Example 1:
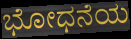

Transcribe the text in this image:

ಭೋಧನೆಯ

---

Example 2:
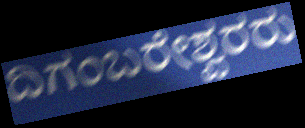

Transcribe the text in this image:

ದಿಗಂಬರೇಶ್ವರರು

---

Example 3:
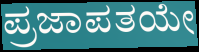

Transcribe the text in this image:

ಪ್ರಜಾಪತಯೇ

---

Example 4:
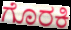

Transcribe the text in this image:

ಗೊರಕಿ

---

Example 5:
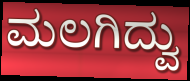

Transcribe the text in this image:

ಮಲಗಿದ್ವು